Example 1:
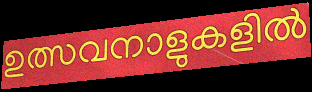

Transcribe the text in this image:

ഉത്സവനാളുകളിൽ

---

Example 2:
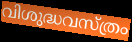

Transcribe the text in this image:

വിശുദ്ധവസ്ത്രം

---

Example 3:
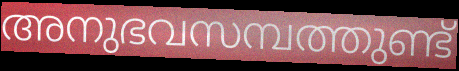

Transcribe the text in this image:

അനുഭവസമ്പത്തുണ്ട്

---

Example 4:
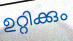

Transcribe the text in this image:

ഉറ്റിക്കും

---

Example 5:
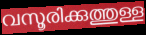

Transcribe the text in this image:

വസൂരിക്കുത്തുള്ള